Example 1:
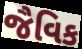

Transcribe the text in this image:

જૈવિક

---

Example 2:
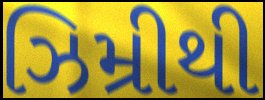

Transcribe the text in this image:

ઝિમ્રીથી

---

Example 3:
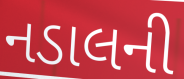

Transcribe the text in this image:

નડાલની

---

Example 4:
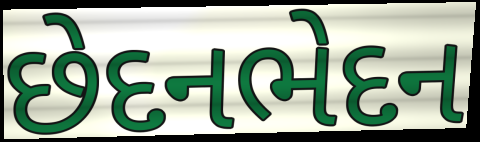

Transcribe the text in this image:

છેદનભેદન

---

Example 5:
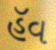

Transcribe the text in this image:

હૅવ